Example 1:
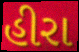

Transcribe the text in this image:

હીરા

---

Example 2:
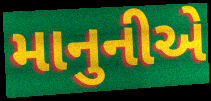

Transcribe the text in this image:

માનુનીએ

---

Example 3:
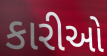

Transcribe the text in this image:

કારીઓ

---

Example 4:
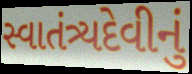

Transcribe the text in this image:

સ્વાતંત્ર્યદેવીનું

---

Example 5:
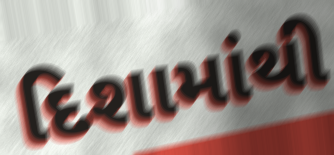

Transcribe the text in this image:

દિશામાંથી